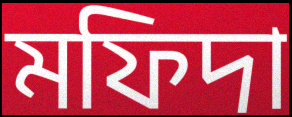
মফিদা